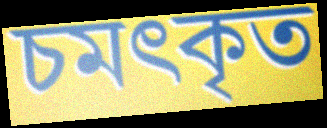
চমৎকৃত